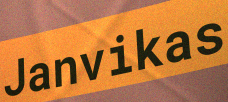
Janvikas